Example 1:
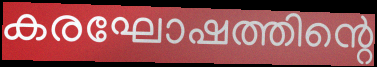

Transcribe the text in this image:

കരഘോഷത്തിന്റെ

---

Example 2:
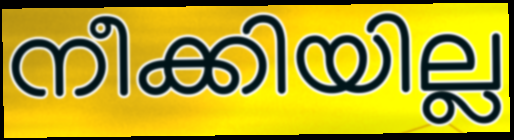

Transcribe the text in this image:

നീക്കിയില്ല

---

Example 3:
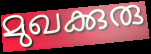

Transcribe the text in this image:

മുഖക്കുരു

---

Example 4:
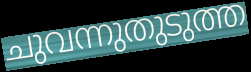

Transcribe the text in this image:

ചുവന്നുതുടുത്ത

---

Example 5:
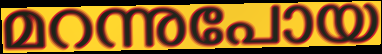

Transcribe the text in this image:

മറന്നുപോയ